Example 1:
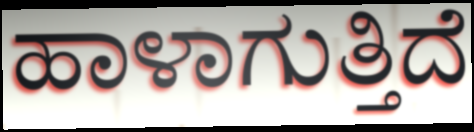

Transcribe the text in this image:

ಹಾಳಾಗುತ್ತಿದೆ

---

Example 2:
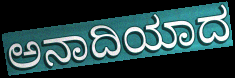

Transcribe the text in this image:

ಅನಾದಿಯಾದ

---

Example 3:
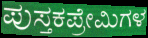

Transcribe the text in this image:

ಪುಸ್ತಕಪ್ರೇಮಿಗಳ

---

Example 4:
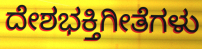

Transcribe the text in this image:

ದೇಶಭಕ್ತಿಗೀತೆಗಳು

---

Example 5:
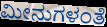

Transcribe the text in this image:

ಮೀನುಗಳಂತೆ